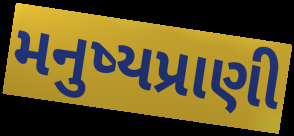
મનુષ્યપ્રાણી